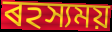
ৰহস্যময়